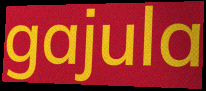
gajula